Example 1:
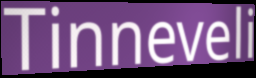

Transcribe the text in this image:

Tinneveli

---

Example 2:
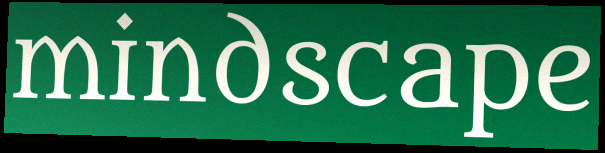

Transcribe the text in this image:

mindscape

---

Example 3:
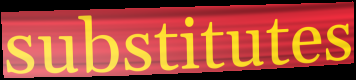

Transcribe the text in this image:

substitutes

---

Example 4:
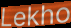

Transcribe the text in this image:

Lekho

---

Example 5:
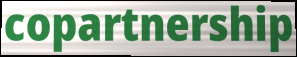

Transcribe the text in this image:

copartnership